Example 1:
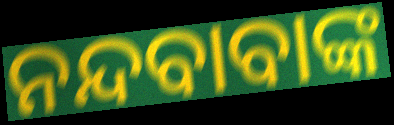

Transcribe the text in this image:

ନନ୍ଦବାବାଙ୍କ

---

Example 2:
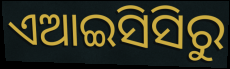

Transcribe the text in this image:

ଏଆଇସିସିରୁ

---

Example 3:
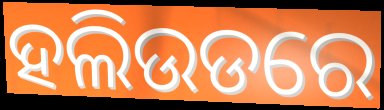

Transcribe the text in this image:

ହଲିଉଡରେ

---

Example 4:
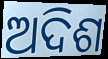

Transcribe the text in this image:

ଅଦିଶ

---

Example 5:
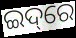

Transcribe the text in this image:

ଇଦ୍‌ରେ